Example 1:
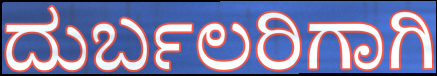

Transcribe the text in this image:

ದುರ್ಬಲರಿಗಾಗಿ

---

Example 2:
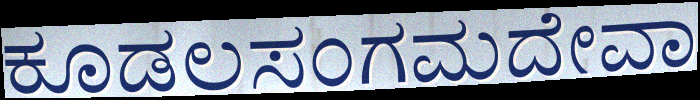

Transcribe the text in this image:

ಕೂಡಲಸಂಗಮದೇವಾ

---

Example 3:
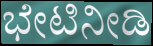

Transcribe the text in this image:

ಭೇಟಿನೀಡಿ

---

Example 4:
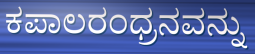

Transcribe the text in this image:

ಕಪಾಲರಂಧ್ರನವನ್ನು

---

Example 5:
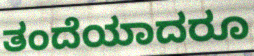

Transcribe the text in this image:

ತಂದೆಯಾದರೂ